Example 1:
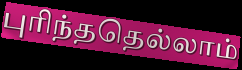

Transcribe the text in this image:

புரிந்ததெல்லாம்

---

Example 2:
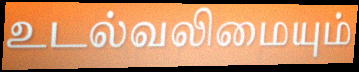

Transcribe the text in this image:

உடல்வலிமையும்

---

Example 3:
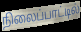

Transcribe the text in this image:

நிலைப்பாட்டில்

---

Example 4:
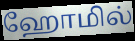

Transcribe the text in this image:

ஹோமில்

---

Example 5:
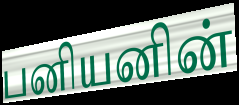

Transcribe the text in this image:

பனியனின்